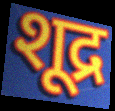
शूद्र